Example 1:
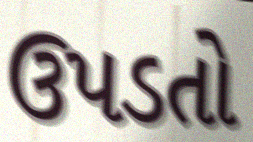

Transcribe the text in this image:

ઉપડતો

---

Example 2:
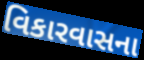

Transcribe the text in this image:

વિકારવાસના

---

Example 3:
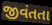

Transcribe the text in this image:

જીવંતતા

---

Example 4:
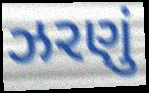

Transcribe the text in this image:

ઝરણું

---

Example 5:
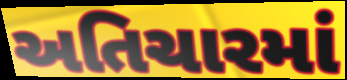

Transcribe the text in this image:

અતિચારમાં